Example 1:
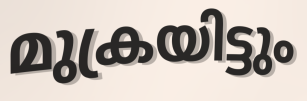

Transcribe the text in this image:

മുക്രയിട്ടും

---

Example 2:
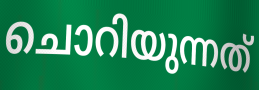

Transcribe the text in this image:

ചൊറിയുന്നത്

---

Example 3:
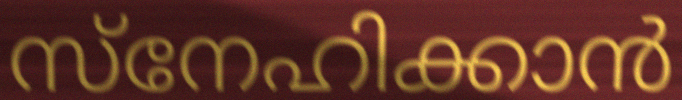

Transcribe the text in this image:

സ്നേഹിക്കാൻ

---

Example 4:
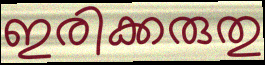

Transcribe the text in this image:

ഇരിക്കരുതു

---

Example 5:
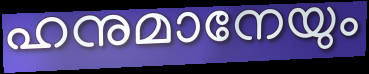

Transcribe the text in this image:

ഹനുമാനേയും